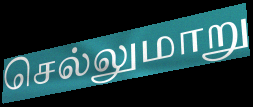
செல்லுமாறு